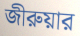
জীরুয়ার